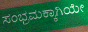
ಸಂಭ್ರಮಕ್ಕಾಗಿಯೇ